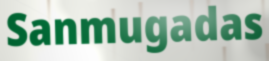
Sanmugadas